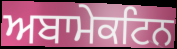
ਅਬਾਮੇਕਟਿਨ